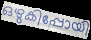
ഒഴുകിപ്പോയി